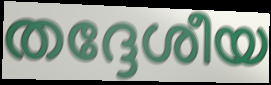
തദ്ദേശീയ